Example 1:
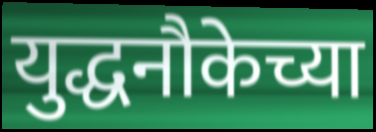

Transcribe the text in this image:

युद्धनौकेच्या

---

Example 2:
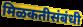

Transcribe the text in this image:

मिळकतीसंबंधी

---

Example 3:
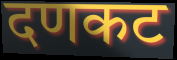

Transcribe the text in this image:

दणकट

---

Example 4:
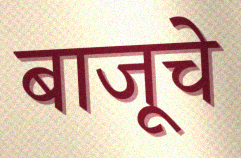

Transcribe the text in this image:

बाजूचे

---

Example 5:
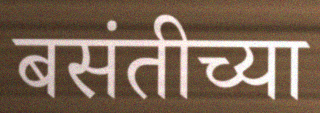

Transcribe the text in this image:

बसंतीच्या